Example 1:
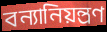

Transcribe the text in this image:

বন্যানিয়ন্ত্রণ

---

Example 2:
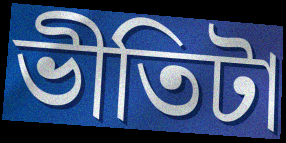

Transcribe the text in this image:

ভীতিটা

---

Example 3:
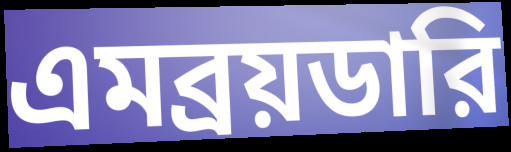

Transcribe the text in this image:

এমব্রয়ডারি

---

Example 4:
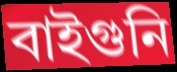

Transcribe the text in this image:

বাইগুনি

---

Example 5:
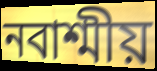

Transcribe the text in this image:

নবাশ্মীয়